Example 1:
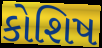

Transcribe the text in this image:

કોશિષ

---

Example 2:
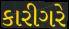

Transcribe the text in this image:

કારીગરે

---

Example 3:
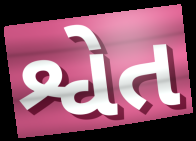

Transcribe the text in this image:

શ્વેત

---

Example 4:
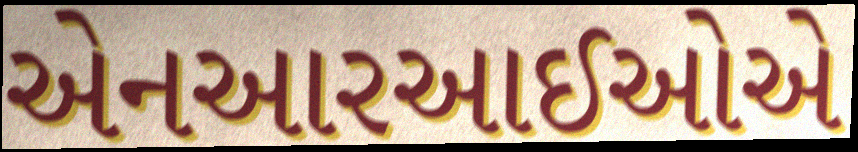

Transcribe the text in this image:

એનઆરઆઈઓએ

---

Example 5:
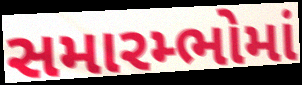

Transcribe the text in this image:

સમારમ્ભોમાં